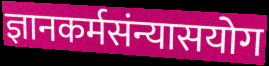
ज्ञानकर्मसंन्यासयोग